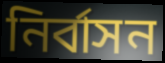
নিৰ্বাসন